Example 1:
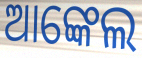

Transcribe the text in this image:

ଆଙ୍କେଲ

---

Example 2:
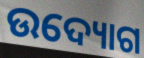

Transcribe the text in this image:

ଉଦ୍ୟୋଗ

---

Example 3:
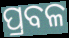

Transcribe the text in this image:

ପ୍ରବଳ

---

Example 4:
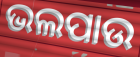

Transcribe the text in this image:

ଭଲପାଉ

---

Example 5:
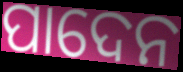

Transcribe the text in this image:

ପାଦେନ